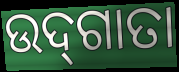
ଉଦ୍‌ଗାତା